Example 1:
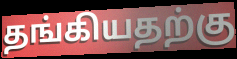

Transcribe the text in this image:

தங்கியதற்கு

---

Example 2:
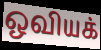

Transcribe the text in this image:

ஒவியக்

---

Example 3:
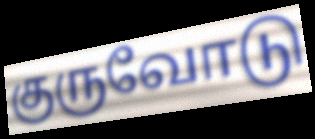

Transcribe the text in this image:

குருவோடு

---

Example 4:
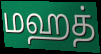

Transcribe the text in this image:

மஹத்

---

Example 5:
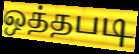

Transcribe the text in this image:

ஒத்தபடி